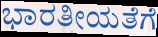
ಭಾರತೀಯತೆಗೆ